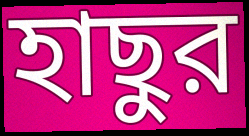
হাছুর